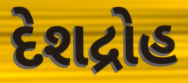
દેશદ્રોહ